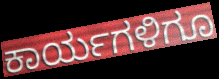
ಕಾರ್ಯಗಳಿಗೂ